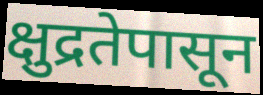
क्षुद्रतेपासून